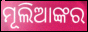
ମୂଲିଆଙ୍କର